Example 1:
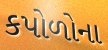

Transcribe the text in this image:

કપોળોના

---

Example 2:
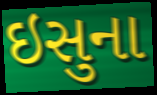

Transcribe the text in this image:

ઇસુના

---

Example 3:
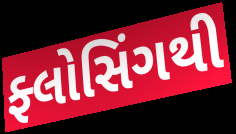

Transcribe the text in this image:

ફ્લોસિંગથી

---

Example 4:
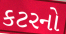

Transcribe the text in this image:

કટરનો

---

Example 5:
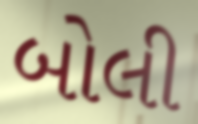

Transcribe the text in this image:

બોલી